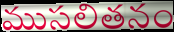
ముసలితనం